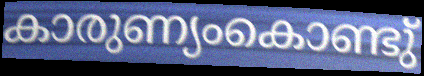
കാരുണ്യംകൊണ്ടു്